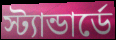
স্ট্যান্ডার্ডে